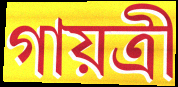
গায়ত্ৰী